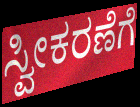
ಸ್ವೀಕರಣೆಗೆ